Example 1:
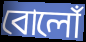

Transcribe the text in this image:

বোলোঁ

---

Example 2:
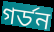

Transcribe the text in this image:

গৰ্ডন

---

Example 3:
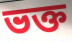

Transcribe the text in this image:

ভক্ত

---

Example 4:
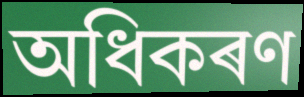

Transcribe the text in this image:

অধিকৰণ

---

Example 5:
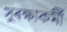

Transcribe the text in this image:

সুৰক্ষাকৰ্মী